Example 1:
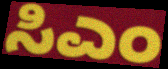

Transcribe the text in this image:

ಸಿಎಂ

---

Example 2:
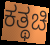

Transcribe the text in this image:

ಕತ್ಥಚಿ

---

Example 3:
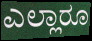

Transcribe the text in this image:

ಎಲ್ಲಾರೂ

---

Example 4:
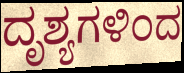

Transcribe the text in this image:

ದೃಶ್ಯಗಳಿಂದ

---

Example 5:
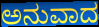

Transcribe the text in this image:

ಅನುವಾದ